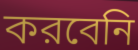
করবেনি